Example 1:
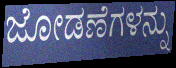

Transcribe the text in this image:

ಜೋಡಣೆಗಳನ್ನು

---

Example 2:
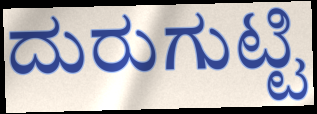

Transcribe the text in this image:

ದುರುಗುಟ್ಟಿ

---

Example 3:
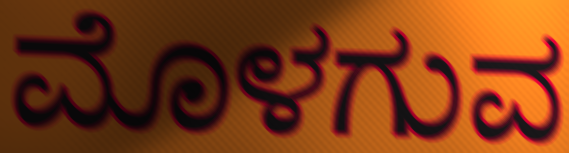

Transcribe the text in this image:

ಮೊಳಗುವ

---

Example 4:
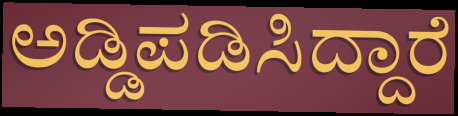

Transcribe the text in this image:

ಅಡ್ಡಿಪಡಿಸಿದ್ದಾರೆ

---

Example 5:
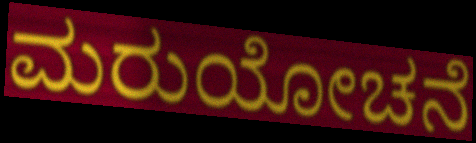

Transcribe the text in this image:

ಮರುಯೋಚನೆ